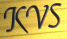
KVS